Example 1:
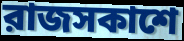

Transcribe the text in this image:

রাজসকাশে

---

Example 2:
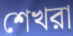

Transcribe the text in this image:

শেখরা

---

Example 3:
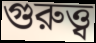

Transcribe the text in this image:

গুরুত্ত্ব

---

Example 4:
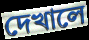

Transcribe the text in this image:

দেখালে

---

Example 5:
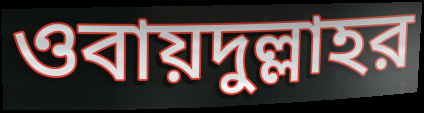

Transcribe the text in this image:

ওবায়দুল্লাহর